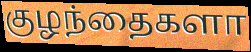
குழந்தைகளா